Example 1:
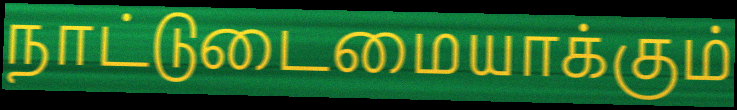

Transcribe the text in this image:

நாட்டுடைமையாக்கும்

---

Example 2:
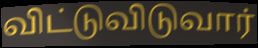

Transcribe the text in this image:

விட்டுவிடுவார்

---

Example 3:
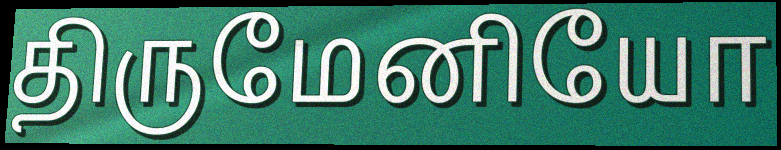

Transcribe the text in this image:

திருமேனியோ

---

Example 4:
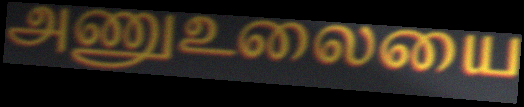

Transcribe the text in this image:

அணுஉலையை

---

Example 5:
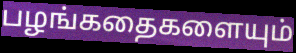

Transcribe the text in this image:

பழங்கதைகளையும்